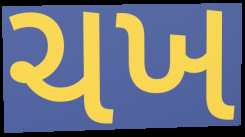
ચખ